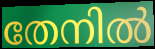
തേനിൽ